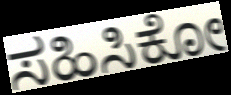
ಸಹಿಸಿಕೋ